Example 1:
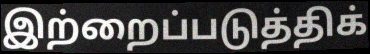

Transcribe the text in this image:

இற்றைப்படுத்திக்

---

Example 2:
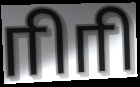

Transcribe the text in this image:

ரிரி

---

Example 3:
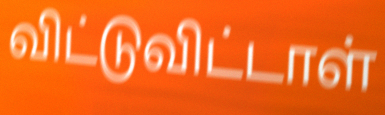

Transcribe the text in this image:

விட்டுவிட்டாள்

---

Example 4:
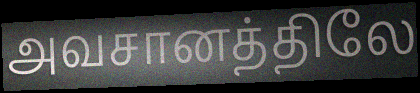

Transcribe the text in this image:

அவசானத்திலே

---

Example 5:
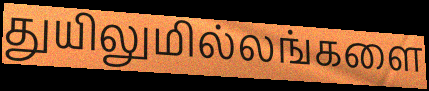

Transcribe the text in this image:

துயிலுமில்லங்களை